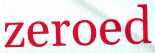
zeroed